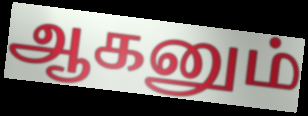
ஆகனும்